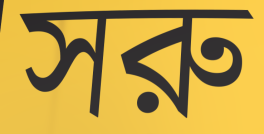
সরু